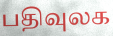
பதிவுலக